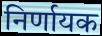
निर्णायक